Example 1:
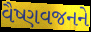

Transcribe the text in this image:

વૈષ્ણવજનને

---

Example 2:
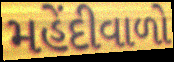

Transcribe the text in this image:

મહેંદીવાળો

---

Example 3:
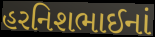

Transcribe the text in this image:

હરનિશભાઈનાં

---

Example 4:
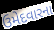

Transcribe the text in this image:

ઉમેદવારના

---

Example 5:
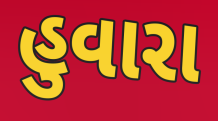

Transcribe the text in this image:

હુવારા